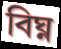
বিঘ্ন